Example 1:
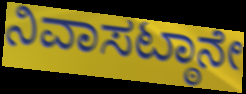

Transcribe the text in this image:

ನಿವಾಸಟ್ಠಾನೇ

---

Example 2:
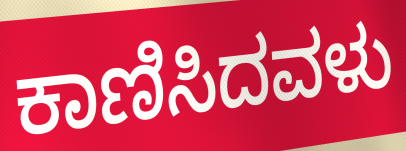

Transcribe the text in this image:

ಕಾಣಿಸಿದವಳು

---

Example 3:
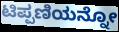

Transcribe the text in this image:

ಟಿಪ್ಪಣಿಯನ್ನೋ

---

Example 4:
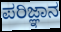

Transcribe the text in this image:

ಪರಿಜ್ಞಾನ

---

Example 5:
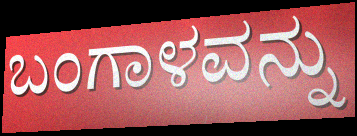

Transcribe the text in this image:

ಬಂಗಾಳವನ್ನು